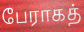
பேராகத்